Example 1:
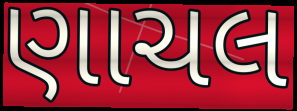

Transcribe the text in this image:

ણાચલ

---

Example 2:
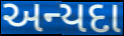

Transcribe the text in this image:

અન્યદા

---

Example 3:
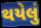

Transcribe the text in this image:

થયેલું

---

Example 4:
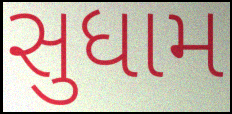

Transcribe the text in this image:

સુધામ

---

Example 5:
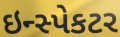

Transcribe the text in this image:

ઇન્સ્પેકટર